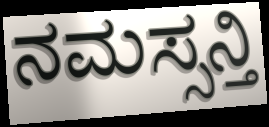
ನಮಸ್ಸನ್ತಿ